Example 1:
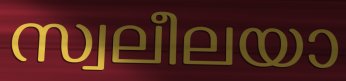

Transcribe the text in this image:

സ്വലീലയാ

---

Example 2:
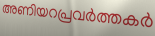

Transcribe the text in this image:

അണിയറപ്രവർത്തകർ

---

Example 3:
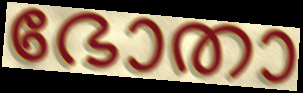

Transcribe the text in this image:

ഭോതാ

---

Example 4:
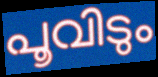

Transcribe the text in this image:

പൂവിടും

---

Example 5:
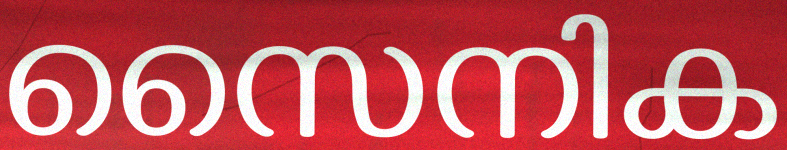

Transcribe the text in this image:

സൈനിക